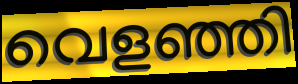
വെളഞ്ഞി